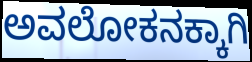
ಅವಲೋಕನಕ್ಕಾಗಿ